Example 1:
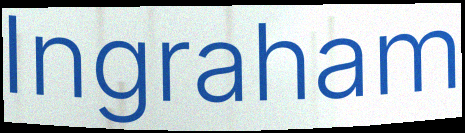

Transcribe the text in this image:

Ingraham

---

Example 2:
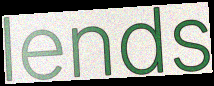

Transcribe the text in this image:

lends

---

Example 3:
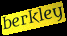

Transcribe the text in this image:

berkley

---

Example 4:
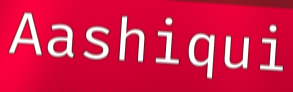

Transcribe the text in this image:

Aashiqui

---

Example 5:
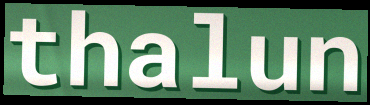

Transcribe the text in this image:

thalun